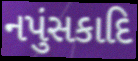
નપુંસકાદિ